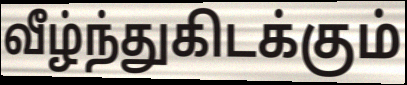
வீழ்ந்துகிடக்கும்